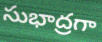
సుభాద్రగా